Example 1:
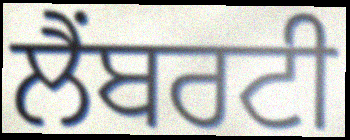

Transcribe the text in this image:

ਲੈਂਬਰਟੀ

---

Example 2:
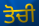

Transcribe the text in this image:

ਤੋਚੀ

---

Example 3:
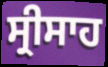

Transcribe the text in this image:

ਸ੍ਰੀਸਾਹ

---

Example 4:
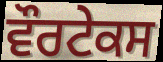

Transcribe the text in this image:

ਵੌਰਟੇਕਸ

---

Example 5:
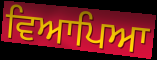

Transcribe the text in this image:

ਵਿਆਪਿਆ